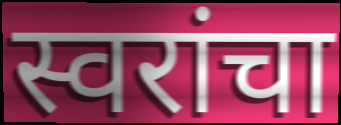
स्वरांचा